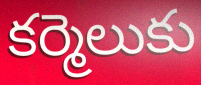
కర్మెలుకు